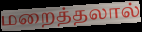
மறைத்தலால்